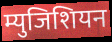
म्‍युजिशियन